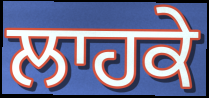
ਲਾਹਕੇ